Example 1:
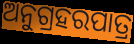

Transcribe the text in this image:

ଅନୁଗ୍ରହରପାତ୍ର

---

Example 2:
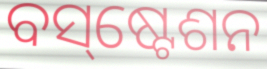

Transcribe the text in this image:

ବସ୍‌ଷ୍ଟେଶନ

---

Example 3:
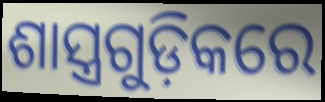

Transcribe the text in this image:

ଶାସ୍ତ୍ରଗୁଡ଼ିକରେ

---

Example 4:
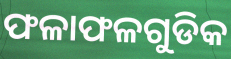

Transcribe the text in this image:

ଫଳାଫଳଗୁଡିକ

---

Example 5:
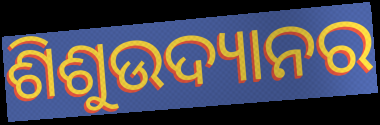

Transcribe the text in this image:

ଶିଶୁଉଦ୍ୟାନର